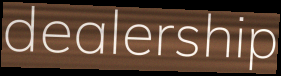
dealership